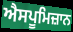
ਐਸਪੂਮਿਜ਼ਾਨ